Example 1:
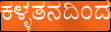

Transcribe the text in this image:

ಕಳ್ಳತನದಿಂದ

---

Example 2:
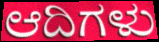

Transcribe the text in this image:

ಆದಿಗಳು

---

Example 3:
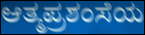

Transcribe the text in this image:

ಆತ್ಮಪ್ರಶಂಸೆಯ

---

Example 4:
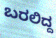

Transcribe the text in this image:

ಬರಲಿದ್ದ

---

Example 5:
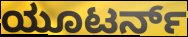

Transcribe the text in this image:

ಯೂಟರ್ನ್